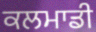
ਕਲਮਾਡੀ